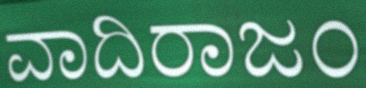
ವಾದಿರಾಜಂ